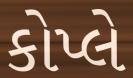
કોપ્લે